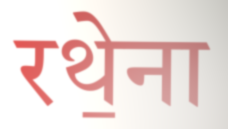
रथे॒ना